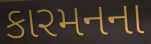
કારમનના